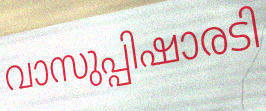
വാസുപ്പിഷാരടി